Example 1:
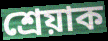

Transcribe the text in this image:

শ্ৰেয়াক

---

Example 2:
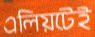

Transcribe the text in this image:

এলিয়টেই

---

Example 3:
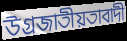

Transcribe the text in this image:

উগ্ৰজাতীয়তাবাদী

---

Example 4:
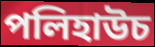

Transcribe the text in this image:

পলিহাউচ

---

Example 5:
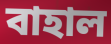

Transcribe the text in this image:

বাহাল